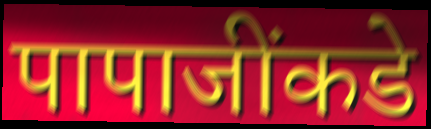
पापाजींकडे